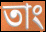
তাং